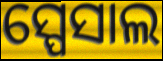
ସ୍ପେସାଲ